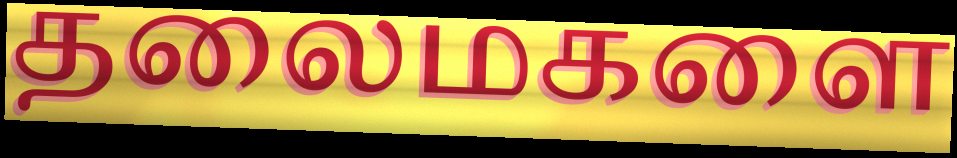
தலைமகளை